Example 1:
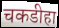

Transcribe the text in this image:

चकडीहा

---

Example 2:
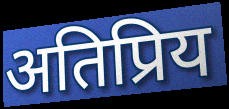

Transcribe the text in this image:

अतिप्रिय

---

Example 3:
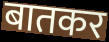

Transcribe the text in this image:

बातकर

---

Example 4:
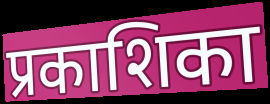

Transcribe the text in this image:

प्रकाशिका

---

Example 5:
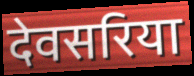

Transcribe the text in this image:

देवसरिया